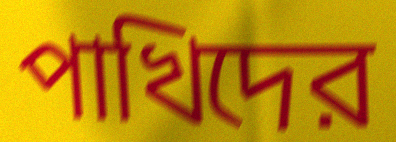
পাখিদের